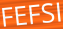
FEFSI